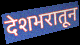
देशभरातून